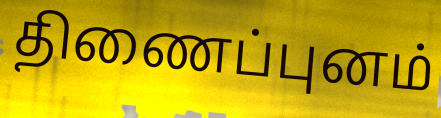
திணைப்புனம்